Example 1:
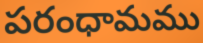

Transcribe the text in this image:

పరంధామము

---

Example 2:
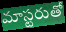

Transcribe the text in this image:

మాస్టరుతో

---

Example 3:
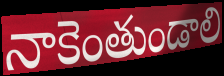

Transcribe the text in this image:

నాకెంతుండాలి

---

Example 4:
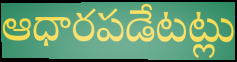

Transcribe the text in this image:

ఆధారపడేటట్లు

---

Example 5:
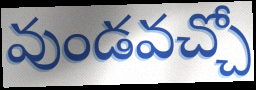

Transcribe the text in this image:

వుండవచ్చో